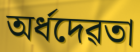
অৰ্ধদেৱতা